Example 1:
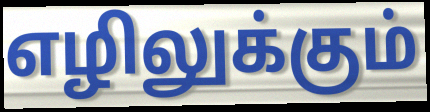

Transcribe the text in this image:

எழிலுக்கும்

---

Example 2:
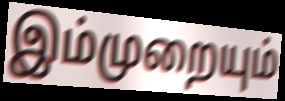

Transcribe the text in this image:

இம்முறையும்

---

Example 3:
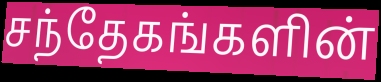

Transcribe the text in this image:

சந்தேகங்களின்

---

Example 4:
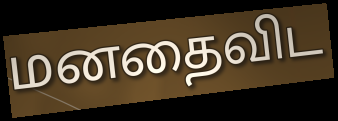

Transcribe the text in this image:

மனதைவிட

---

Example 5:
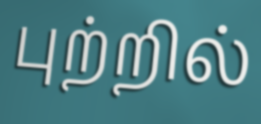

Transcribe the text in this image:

புற்றில்